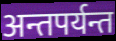
अन्तपर्यन्त